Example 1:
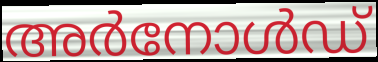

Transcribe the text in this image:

അർനോൾഡ്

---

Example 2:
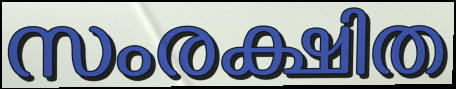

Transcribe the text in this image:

സംരക്ഷിത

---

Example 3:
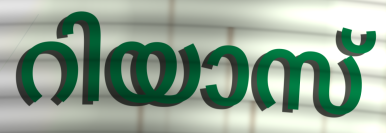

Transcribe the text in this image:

റിയാസ്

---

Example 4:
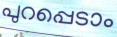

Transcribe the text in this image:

പുറപ്പെടാം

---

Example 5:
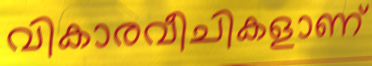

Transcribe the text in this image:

വികാരവീചികളാണ്